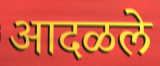
आदळले